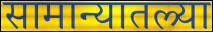
सामान्यातल्या